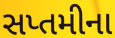
સપ્તમીના